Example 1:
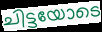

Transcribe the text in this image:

ചിട്ടയോടെ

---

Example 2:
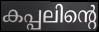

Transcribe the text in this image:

കപ്പലിന്റെ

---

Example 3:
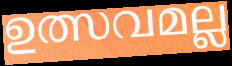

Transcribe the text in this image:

ഉത്സവമല്ല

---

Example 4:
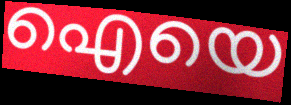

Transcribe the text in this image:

ഐയെ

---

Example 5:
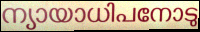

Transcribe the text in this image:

ന്യായാധിപനോടു